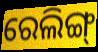
ରେଲିଙ୍ଗ୍